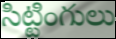
సిట్టింగులు